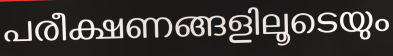
പരീക്ഷണങ്ങളിലൂടെയും